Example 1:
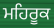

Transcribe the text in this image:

ਮਹਿਰੂਕ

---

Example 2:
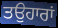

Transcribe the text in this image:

ਤਉਹਾਰਾਂ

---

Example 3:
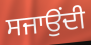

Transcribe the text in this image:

ਸਜਾਉਂਦੀ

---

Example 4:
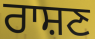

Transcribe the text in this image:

ਰਾਸ਼ਣ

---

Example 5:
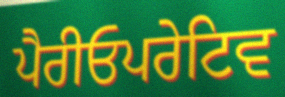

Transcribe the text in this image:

ਪੈਰੀਓਪਰੇਟਿਵ